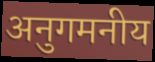
अनुगमनीय